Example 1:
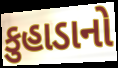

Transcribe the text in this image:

કુહાડાનો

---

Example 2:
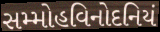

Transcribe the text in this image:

સમ્મોહવિનોદનિયં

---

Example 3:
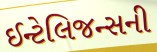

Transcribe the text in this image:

ઈન્ટેલિજન્સની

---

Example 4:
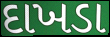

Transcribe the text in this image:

દાખડા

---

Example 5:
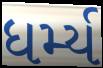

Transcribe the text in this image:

ધર્મ્ય